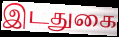
இடதுகை